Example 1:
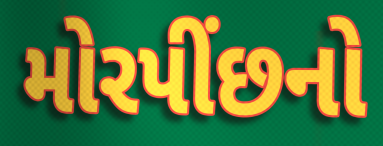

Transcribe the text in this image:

મોરપીંછનો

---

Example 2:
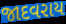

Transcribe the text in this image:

જાદવરાય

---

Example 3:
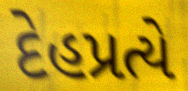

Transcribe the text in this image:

દેહપ્રત્યે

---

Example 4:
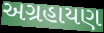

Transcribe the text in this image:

અગ્રહાયણ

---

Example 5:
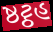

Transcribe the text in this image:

ષ્ઠટ્ઠહ